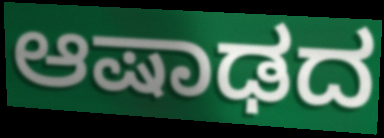
ಆಷಾಢದ